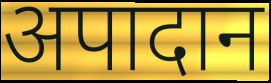
अपादान